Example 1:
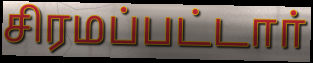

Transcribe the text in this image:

சிரமப்பட்டார்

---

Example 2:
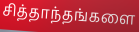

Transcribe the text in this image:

சித்தாந்தங்களை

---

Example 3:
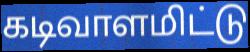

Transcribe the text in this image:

கடிவாளமிட்டு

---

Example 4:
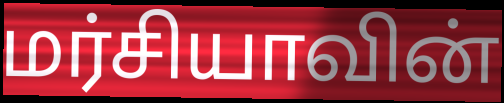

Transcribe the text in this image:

மர்சியாவின்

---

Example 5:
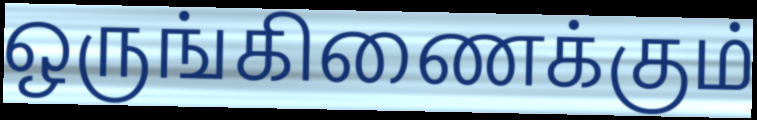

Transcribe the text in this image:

ஒருங்கிணைக்கும்